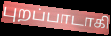
புறப்பாடாகி